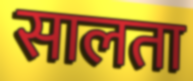
सालता